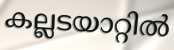
കല്ലടയാറ്റിൽ